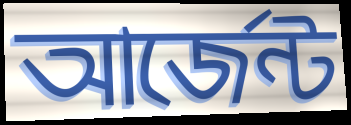
আর্জেন্ট